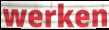
werken